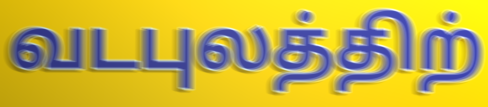
வடபுலத்திற்